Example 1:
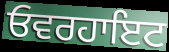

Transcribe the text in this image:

ਓਵਰਹਾਇਟ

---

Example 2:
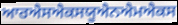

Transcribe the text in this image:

ਆਰਐਸਐਕਸਯੂਐਨਐਮਐਕਸ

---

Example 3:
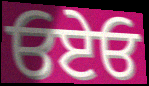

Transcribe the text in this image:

ਓਏਓ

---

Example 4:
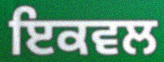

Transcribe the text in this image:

ਇਕਵਲ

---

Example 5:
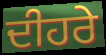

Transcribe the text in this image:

ਦੀਹਰੇ